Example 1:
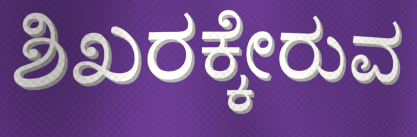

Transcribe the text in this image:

ಶಿಖರಕ್ಕೇರುವ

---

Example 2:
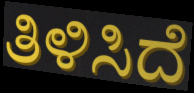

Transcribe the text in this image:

ತಿಳಿಸಿದೆ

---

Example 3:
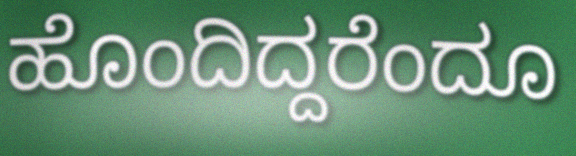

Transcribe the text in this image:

ಹೊಂದಿದ್ದರೆಂದೂ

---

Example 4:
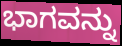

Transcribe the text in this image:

ಭಾಗವನ್ನು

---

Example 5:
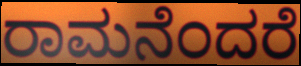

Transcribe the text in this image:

ರಾಮನೆಂದರೆ